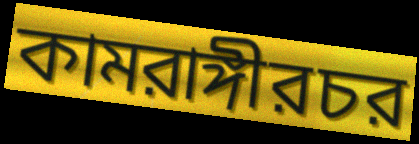
কামরাঙ্গীরচর